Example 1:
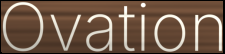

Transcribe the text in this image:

Ovation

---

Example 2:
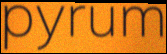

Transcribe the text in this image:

pyrum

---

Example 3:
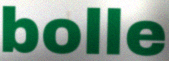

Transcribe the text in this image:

bolle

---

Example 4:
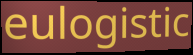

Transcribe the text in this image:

eulogistic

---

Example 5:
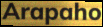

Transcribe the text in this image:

Arapaho